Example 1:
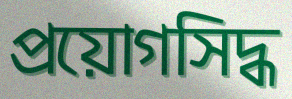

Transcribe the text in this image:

প্রয়োগসিদ্ধ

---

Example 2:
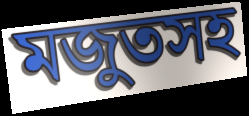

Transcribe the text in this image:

মজুতসহ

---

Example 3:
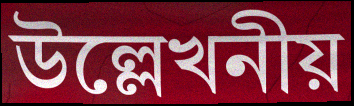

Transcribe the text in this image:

উল্লেখনীয়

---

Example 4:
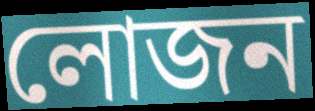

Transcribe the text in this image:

লোজন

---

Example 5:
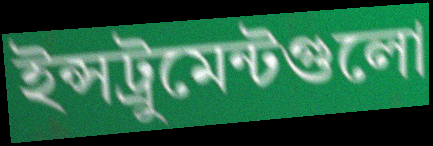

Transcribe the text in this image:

ইন্সট্রুমেন্টগুলো